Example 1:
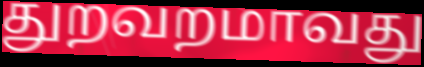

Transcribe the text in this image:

துறவறமாவது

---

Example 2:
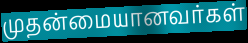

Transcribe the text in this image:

முதன்மையானவர்கள்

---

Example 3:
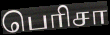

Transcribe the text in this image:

பெரிசா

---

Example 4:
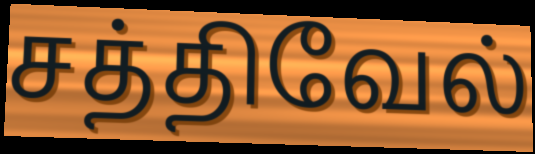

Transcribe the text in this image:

சத்திவேல்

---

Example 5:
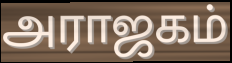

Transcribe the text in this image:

அராஜகம்